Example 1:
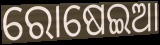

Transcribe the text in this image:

ରୋଷେଇଆ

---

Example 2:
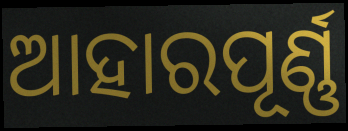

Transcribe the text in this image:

ଆହାରପୂର୍ଣ୍ଣ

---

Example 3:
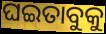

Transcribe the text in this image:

ଘଇତାବୁକୁ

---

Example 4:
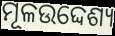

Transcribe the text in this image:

ମୂଳଉଦ୍ଦେଶ୍ୟ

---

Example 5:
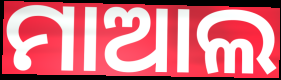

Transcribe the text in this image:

ମାଆଲ